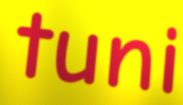
tuni